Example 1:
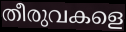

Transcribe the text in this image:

തീരുവകളെ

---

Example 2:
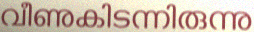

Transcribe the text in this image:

വീണുകിടന്നിരുന്നു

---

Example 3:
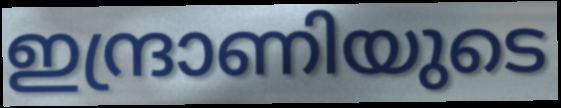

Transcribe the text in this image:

ഇന്ദ്രാണിയുടെ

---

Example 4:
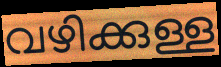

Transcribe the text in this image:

വഴിക്കുള്ള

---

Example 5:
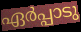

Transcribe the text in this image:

ഏർപ്പാടു